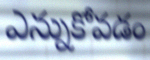
ఎన్నుకోవడం